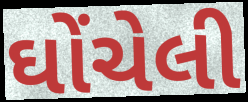
ઘોંચેલી